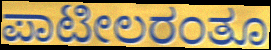
ಪಾಟೀಲರಂತೂ